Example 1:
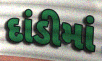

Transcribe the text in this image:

દાંડીમાં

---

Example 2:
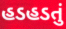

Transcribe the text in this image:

હડહડતું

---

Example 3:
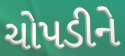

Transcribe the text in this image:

ચોપડીને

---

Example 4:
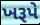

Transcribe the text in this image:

ખરૂપે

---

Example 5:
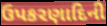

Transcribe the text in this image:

ઉપકરણાદિની